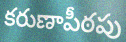
కరుణాపీఠపు